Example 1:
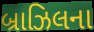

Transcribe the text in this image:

બ્રાઝિલના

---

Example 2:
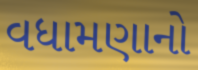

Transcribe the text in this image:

વધામણાનો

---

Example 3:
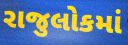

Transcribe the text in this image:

રાજુલોકમાં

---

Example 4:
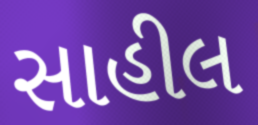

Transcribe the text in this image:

સાહીલ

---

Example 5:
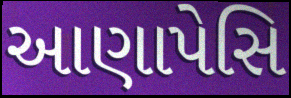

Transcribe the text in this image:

આણાપેસિ